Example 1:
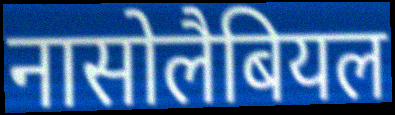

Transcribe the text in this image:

नासोलैबियल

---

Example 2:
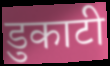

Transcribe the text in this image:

डुकाटी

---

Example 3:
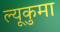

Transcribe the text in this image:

ल्यूकुमा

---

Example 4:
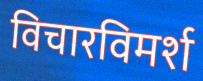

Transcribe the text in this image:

विचारविमर्श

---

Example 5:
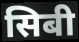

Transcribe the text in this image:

सिबी